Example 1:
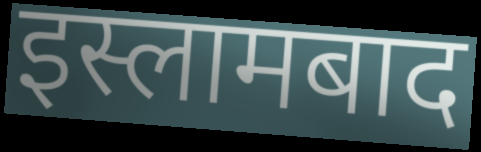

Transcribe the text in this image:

इस्लामबाद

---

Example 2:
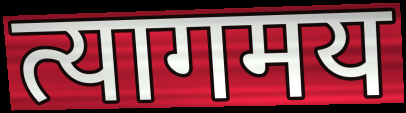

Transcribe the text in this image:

त्यागमय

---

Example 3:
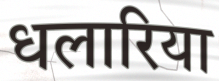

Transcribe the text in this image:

धलारिया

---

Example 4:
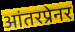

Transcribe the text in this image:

आंतरप्रेनर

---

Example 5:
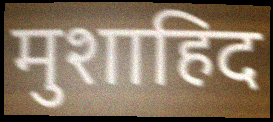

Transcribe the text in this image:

मुशाहिद